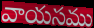
వాయసము